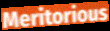
Meritorious